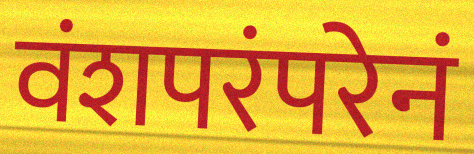
वंशपरंपरेनं